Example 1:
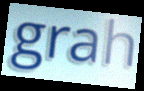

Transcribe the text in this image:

grah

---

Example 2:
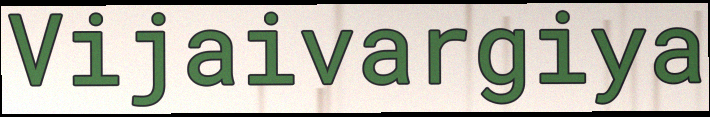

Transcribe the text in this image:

Vijaivargiya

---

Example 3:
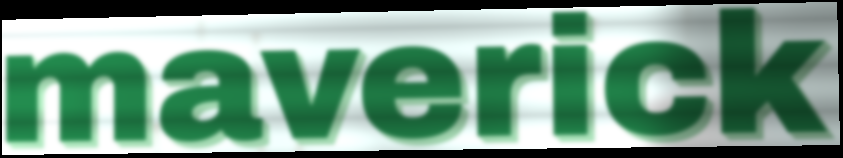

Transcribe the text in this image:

maverick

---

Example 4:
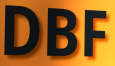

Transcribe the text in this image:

DBF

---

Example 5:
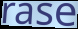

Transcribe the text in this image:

rase